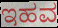
ಇಹವ